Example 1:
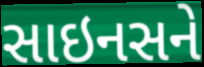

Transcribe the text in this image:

સાઇનસને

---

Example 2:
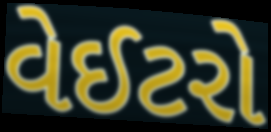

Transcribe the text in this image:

વેઈટરો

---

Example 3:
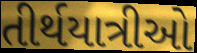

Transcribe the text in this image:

તીર્થયાત્રીઓ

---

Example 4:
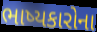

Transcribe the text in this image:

ભાષ્યકારોના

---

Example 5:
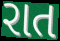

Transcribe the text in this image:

રાત